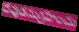
దేవుడనుగ్రహించు